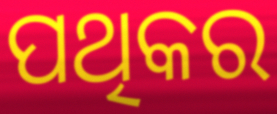
ପଥିକର